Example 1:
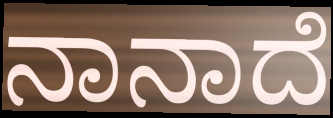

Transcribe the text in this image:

ನಾನಾದೆ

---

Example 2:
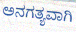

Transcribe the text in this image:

ಅನಗತ್ಯವಾಗಿ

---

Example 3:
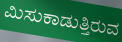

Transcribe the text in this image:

ಮಿಸುಕಾಡುತ್ತಿರುವ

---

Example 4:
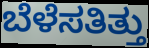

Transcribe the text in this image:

ಬೆಳೆಸತಿತ್ತು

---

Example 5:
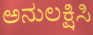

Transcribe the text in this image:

ಅನುಲಕ್ಷಿಸಿ